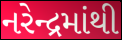
નરેન્દ્રમાંથી